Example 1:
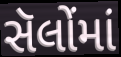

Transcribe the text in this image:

સૅલોંમાં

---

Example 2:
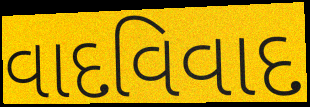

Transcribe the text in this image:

વાદવિવાદ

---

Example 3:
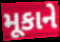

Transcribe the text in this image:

મૂકાને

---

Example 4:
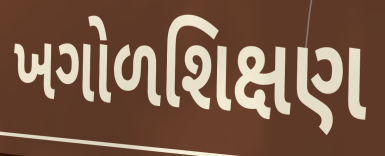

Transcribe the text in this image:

ખગોળશિક્ષણ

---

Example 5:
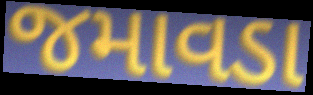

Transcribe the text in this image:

જમાવડા